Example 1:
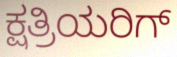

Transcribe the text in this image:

ಕ್ಷತ್ರಿಯರಿಗ್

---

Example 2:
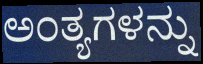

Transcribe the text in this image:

ಅಂತ್ಯಗಳನ್ನು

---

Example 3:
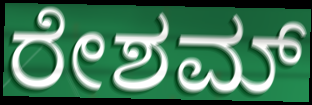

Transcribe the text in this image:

ರೇಶಮ್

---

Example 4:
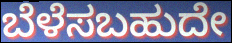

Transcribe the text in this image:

ಬೆಳೆಸಬಹುದೇ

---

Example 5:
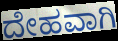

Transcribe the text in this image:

ದೇಹವಾಗಿ